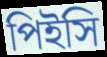
পিইসি